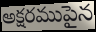
అక్షరముపైన